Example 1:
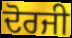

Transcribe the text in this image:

ਦੋਰਜੀ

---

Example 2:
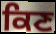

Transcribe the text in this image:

ਕਿਣ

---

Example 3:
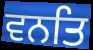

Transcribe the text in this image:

ਵਨਤਿ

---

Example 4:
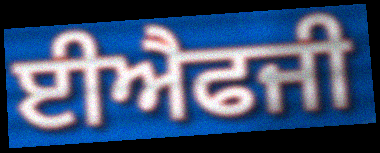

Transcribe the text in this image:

ਈਐਫਜੀ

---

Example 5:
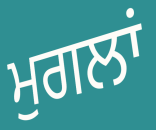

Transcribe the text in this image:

ਮੁਗਲਾਂ